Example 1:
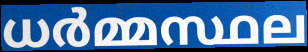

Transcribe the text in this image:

ധർമ്മസ്ഥല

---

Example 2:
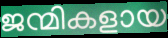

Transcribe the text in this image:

ജന്മികളായ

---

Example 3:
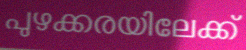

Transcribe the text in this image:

പുഴക്കരയിലേക്ക്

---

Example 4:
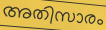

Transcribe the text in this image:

അതിസാരം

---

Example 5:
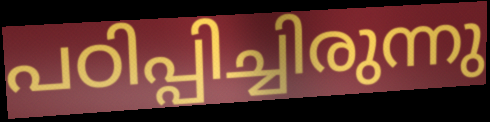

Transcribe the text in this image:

പഠിപ്പിച്ചിരുന്നു